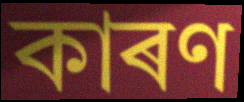
কাৰণ